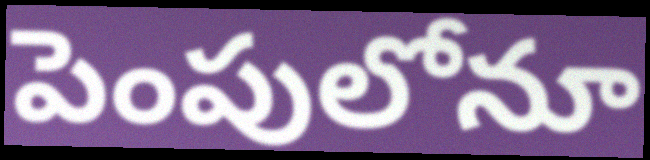
పెంపులోనూ